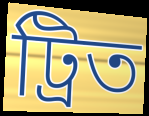
ট্ৰিত